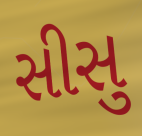
સીસુ